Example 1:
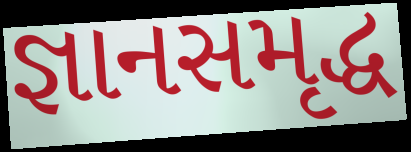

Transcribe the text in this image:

જ્ઞાનસમૃદ્ધ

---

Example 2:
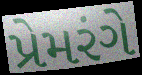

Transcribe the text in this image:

પ્રેમરંગે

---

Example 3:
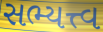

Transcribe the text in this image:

સભ્યત્ત્વ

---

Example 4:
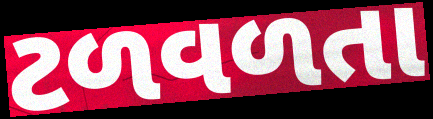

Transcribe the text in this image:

ટળવળતા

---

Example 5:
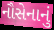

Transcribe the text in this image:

નૌસેનાનું